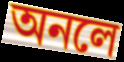
অনলে